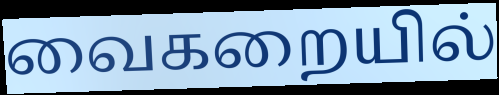
வைகறையில்